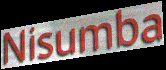
Nisumba